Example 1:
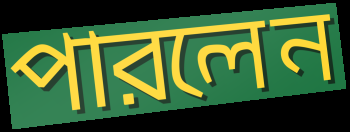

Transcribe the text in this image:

পারলেন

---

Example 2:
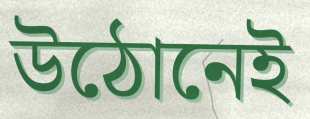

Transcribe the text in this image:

উঠোনেই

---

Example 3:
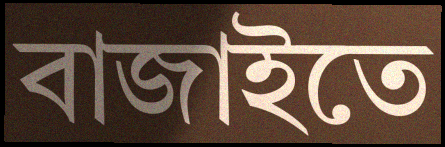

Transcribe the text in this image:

বাজাইতে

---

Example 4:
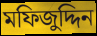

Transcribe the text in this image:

মফিজুদ্দিন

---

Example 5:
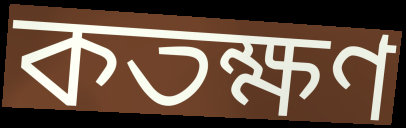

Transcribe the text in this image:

কতক্ষণ